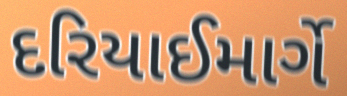
દરિયાઈમાર્ગે